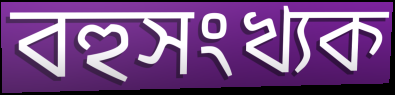
বহুসংখ্যক